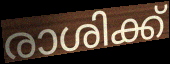
രാശിക്ക്